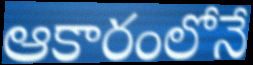
ఆకారంలోనే